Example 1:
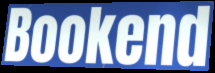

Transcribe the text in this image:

Bookend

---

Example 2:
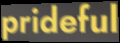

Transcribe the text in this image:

prideful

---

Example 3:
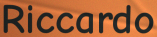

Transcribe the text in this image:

Riccardo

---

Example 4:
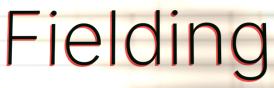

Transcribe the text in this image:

Fielding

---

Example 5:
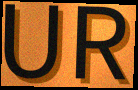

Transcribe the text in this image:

UR